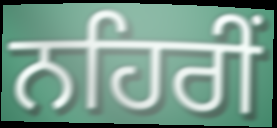
ਨਹਿਰੀਂ